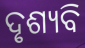
ଦୃଶ୍ୟବି